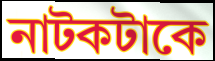
নাটকটাকে